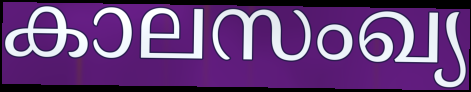
കാലസംഖ്യ